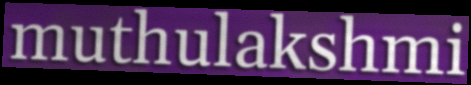
muthulakshmi